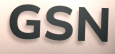
GSN